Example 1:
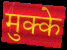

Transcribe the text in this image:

मुक्के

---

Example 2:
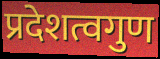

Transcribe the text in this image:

प्रदेशत्वगुण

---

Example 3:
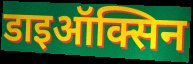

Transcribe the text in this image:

डाइऑक्सिन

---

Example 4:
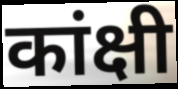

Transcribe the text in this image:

कांक्षी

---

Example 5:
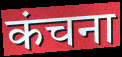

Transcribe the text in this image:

कंचना